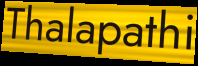
Thalapathi